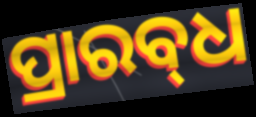
ପ୍ରାରବ୍‍ଧ